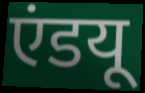
एंडयू